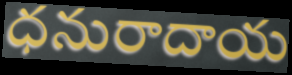
ధనురాదాయ